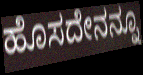
ಹೊಸದೇನನ್ನೂ